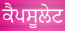
ਕੈਪਸੂਲੇਟ